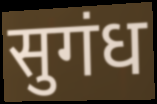
सुगंध